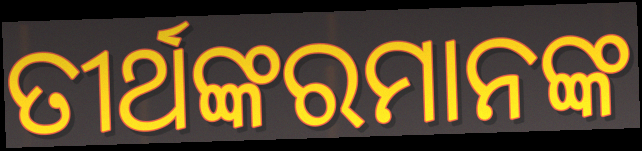
ତୀର୍ଥଙ୍କରମାନଙ୍କ